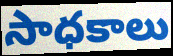
సాధకాలు